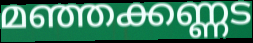
മഞ്ഞക്കണ്ണട